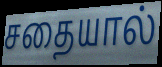
சதையால்